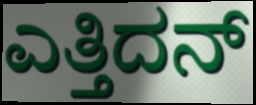
ಎತ್ತಿದನ್